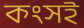
কংসই